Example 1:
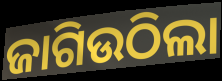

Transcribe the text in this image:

ଜାଗିଉଠିଲା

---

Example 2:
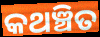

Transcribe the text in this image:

କଥଞ୍ଚିତ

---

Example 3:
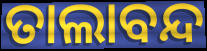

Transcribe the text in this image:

ତାଲାବନ୍ଦ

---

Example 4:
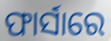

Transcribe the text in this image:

ଫାର୍ସାରେ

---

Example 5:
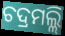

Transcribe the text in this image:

ଚଦ୍ରମଲ୍ଲି